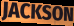
JACKSON